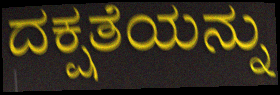
ದಕ್ಷತೆಯನ್ನು